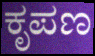
ಕೃಪಣ